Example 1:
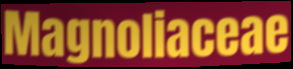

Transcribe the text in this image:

Magnoliaceae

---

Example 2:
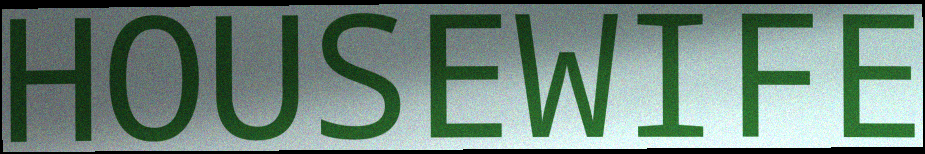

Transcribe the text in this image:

HOUSEWIFE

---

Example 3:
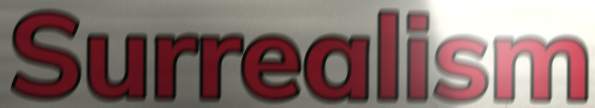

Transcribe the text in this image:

Surrealism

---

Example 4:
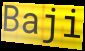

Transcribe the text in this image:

Baji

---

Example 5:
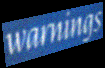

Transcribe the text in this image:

warnings